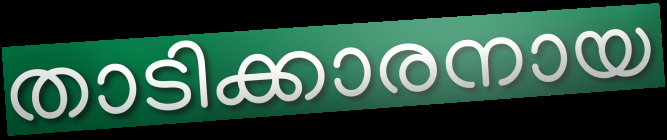
താടിക്കാരനായ